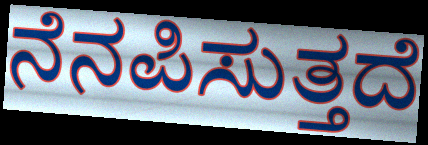
ನೆನಪಿಸುತ್ತದೆ